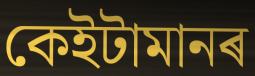
কেইটামানৰ